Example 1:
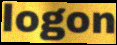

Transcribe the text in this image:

logon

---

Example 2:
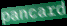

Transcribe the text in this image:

pancard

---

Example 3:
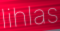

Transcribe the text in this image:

lihlas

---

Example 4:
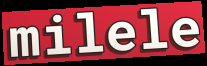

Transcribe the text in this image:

milele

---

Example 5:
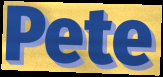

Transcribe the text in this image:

Pete